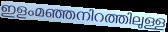
ഇളംമഞ്ഞനിറത്തിലുള്ള